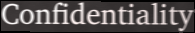
Confidentiality